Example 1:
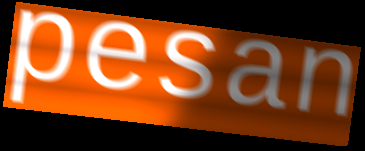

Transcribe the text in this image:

pesan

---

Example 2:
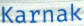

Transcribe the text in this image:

Karnak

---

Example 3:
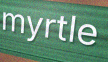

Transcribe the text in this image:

myrtle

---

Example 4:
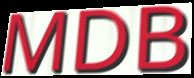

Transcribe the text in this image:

MDB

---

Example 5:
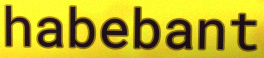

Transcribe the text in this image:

habebant